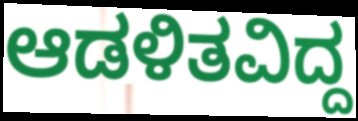
ಆಡಳಿತವಿದ್ದ